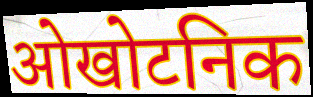
ओखोटनिक